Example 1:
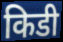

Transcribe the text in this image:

किडी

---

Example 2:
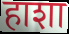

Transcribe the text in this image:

हाशा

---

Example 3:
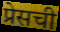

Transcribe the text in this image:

प्रेसची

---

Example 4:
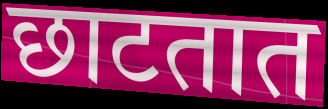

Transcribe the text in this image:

छाटतात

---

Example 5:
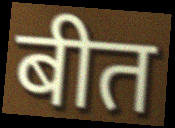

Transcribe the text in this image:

बीत